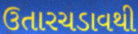
ઉતારચડાવથી